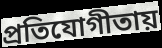
প্রতিযোগীতায়